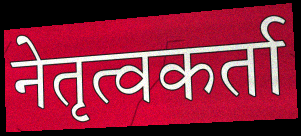
नेतृत्वकर्ता